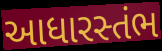
આધારસ્તંભ